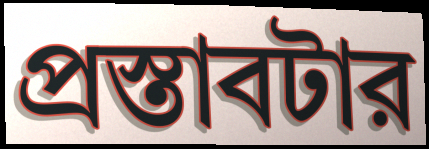
প্রস্তাবটার